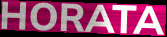
HORATA